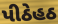
પીઠેહઠ